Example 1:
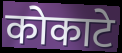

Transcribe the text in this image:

कोकाटे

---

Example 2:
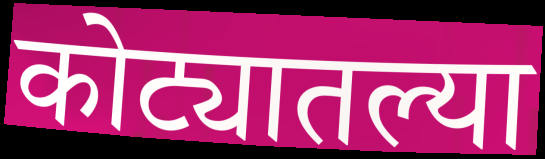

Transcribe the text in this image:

कोट्यातल्या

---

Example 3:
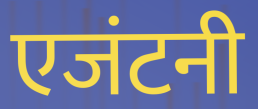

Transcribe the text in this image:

एजंटनी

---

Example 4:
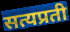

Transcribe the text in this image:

सत्यप्रती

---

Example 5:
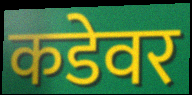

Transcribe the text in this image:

कडेवर